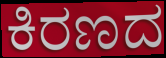
ಕಿರಣದ